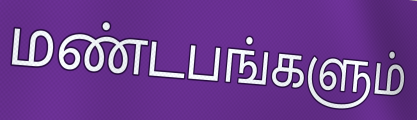
மண்டபங்களும்